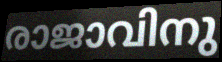
രാജാവിനു